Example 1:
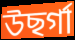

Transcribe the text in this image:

উছৰ্গা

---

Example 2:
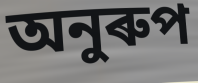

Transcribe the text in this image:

অনুৰুপ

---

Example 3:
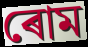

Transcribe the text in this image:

ৰোম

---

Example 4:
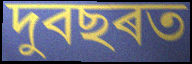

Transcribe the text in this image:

দুবছৰত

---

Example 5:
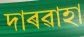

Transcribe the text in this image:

দাৰৱাহা